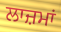
ਲਾਜ਼ਮਾਂ